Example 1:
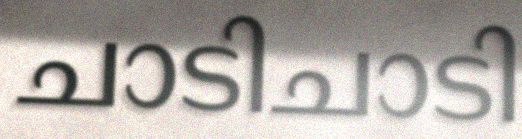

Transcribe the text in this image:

ചാടിചാടി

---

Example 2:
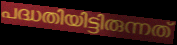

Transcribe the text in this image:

പദ്ധതിയിട്ടിരുന്നത്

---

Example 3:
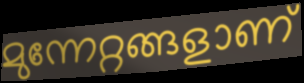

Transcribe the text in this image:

മുന്നേറ്റങ്ങളാണ്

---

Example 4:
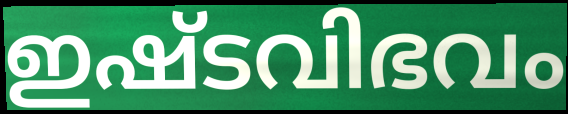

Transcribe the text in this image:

ഇഷ്ടവിഭവം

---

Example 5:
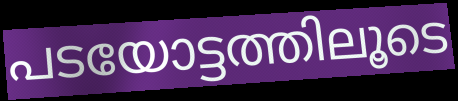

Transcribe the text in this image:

പടയോട്ടത്തിലൂടെ